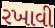
રખાવી